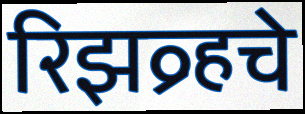
रिझव्र्हचे